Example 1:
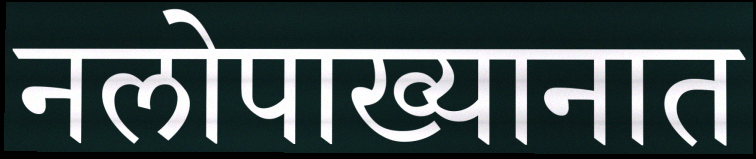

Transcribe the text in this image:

नलोपाख्यानात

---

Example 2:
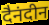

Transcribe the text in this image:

दैनंदीन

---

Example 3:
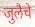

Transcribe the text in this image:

जुलैचे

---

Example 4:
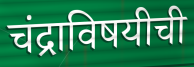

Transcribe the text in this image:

चंद्राविषयीची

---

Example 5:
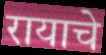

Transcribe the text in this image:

रायाचे